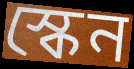
স্কেন